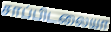
சாப்பிடலையா